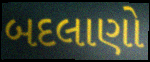
બદલાણો